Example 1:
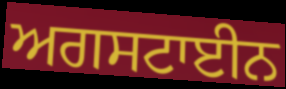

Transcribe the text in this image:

ਅਗਸਟਾਈਨ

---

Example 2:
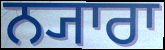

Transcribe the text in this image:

ਨ੍ਯਾਰਾ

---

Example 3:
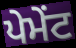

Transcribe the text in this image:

ਪੇਮੇਂਟ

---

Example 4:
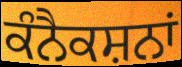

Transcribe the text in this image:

ਕੰਨੈਕਸ਼ਨਾਂ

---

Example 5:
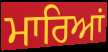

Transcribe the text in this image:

ਮਾਰਿਆਂ